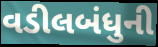
વડીલબંધુની